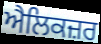
ਐਲਿਕਜ਼ਰ